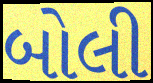
બોલી